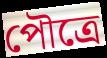
পৌত্রে